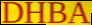
DHBA